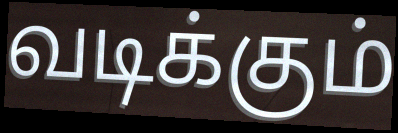
வடிக்கும்